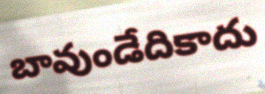
బావుండేదికాదు